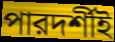
পারদর্শীই